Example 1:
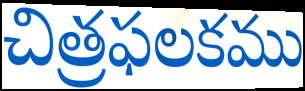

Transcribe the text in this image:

చిత్రఫలకము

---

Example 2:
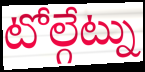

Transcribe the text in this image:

టోల్గేట్ను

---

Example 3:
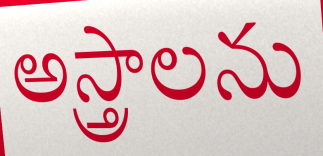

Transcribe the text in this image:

అస్త్రాలను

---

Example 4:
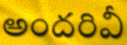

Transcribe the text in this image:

అందరివీ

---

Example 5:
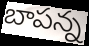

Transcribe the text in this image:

బాపన్న